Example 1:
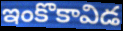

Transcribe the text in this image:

ఇంకొకావిడ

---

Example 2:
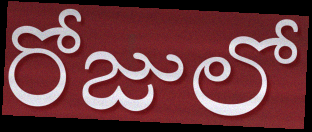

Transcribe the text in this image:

రోజులో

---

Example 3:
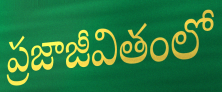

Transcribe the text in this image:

ప్రజాజీవితంలో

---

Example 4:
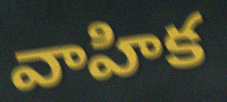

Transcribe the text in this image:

వాహిక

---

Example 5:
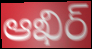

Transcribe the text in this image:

ఆఖిర్